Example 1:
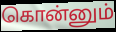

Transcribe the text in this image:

கொன்னும்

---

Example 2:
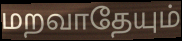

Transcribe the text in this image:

மறவாதேயும்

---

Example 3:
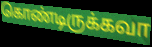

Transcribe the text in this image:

கொண்டிருக்கவா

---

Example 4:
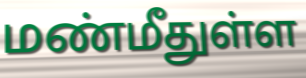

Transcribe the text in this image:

மண்மீதுள்ள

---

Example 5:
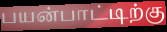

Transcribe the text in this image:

பயன்பாட்டிற்கு